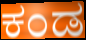
ಕಂಡ